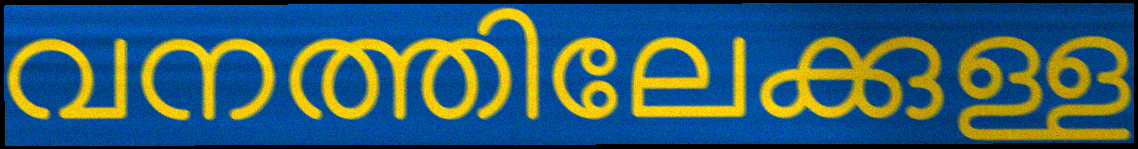
വനത്തിലേക്കുള്ള